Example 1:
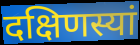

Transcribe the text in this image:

दक्षिणस्यां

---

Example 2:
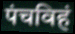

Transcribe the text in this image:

पंचविहं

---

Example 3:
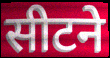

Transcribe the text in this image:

सीटने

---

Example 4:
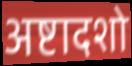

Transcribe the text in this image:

अष्टादशो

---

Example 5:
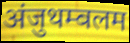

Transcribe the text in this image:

अंजुथम्बलम